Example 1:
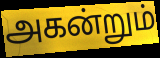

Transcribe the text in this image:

அகன்றும்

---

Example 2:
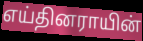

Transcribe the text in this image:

எய்தினராயின்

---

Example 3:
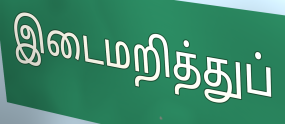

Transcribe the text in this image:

இடைமறித்துப்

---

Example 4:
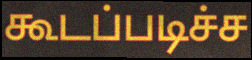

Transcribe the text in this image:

கூடப்படிச்ச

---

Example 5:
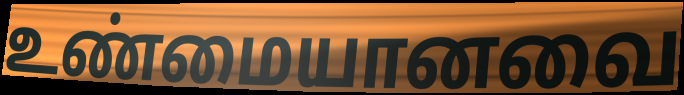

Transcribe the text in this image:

உண்மையானவை